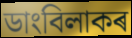
ডাংবিলাকৰ